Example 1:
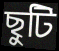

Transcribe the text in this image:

ছুটি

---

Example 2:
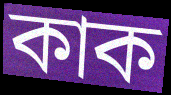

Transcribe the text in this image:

কাক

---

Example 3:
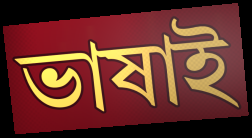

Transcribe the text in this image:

ভাষাই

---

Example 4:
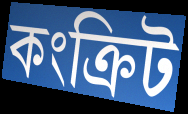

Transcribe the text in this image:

কংক্ৰিট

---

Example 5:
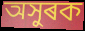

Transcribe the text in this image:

অসুৰক